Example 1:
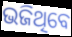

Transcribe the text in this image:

ଭଜିଥିବେ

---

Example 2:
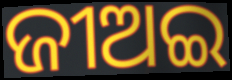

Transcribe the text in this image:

ଜୀଅଇ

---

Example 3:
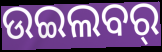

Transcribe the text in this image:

ଉଇଲବର୍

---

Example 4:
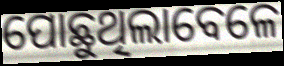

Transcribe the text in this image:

ପୋଛୁଥିଲାବେଳେ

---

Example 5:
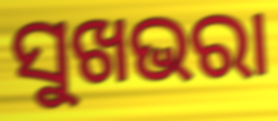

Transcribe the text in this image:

ସୁଖଭରା